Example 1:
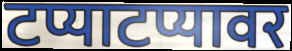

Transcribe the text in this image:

टप्याटप्यावर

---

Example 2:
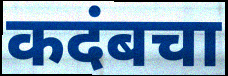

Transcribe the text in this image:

कदंबचा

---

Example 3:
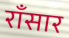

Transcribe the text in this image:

राँसार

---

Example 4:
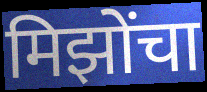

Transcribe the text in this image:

मिझोंचा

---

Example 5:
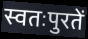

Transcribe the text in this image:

स्वतःपुरतें